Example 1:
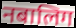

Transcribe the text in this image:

नबालिग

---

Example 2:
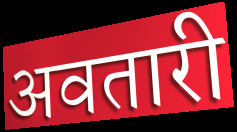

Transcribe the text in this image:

अवतारी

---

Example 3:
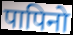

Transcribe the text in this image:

पापिनो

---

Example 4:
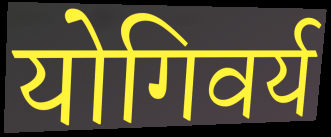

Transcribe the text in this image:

योगिवर्य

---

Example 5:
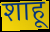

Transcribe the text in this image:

शाहू